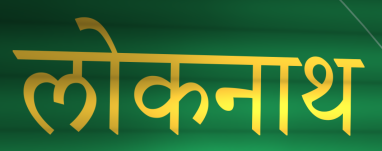
लोकनाथ